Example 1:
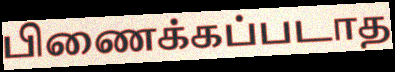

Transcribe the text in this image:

பிணைக்கப்படாத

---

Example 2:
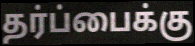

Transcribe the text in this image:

தர்ப்பைக்கு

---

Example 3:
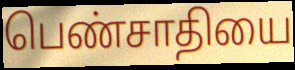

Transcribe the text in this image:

பெண்சாதியை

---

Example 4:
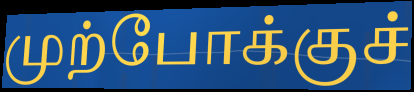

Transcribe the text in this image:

முற்போக்குச்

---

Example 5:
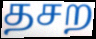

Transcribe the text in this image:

தசற